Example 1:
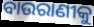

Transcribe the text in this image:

ବାଉରାଣୀକୁ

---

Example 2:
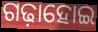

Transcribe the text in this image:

ଗଢ଼ାହୋଇ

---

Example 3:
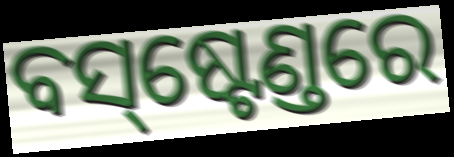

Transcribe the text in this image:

ବସ୍‌ଷ୍ଟେଣ୍ଡରେ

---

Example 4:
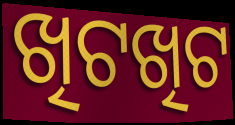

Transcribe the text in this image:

ଖିଟଖିଟ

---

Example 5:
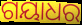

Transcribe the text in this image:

ଗୟାଧର